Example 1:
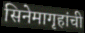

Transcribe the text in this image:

सिनेमागृहांची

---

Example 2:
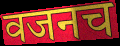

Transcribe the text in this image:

वजनच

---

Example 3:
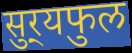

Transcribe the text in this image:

सुर्यफुल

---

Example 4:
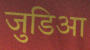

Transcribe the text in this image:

जुडिआ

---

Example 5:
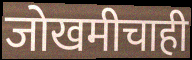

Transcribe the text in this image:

जोखमीचाही